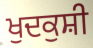
ਖੁਦਕੁਸ਼ੀ